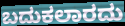
ಬದುಕಲಾರದು